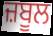
ਜ਼ਬੂਲ